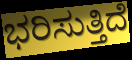
ಭರಿಸುತ್ತಿದೆ